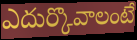
ఎదుర్కొవాలంటే